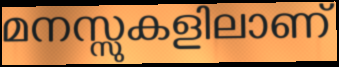
മനസ്സുകളിലാണ്